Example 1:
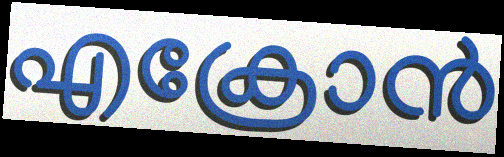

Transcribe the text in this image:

എക്രോൻ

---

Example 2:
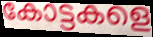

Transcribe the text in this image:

കോട്ടകളെ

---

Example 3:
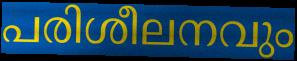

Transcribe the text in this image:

പരിശീലനവും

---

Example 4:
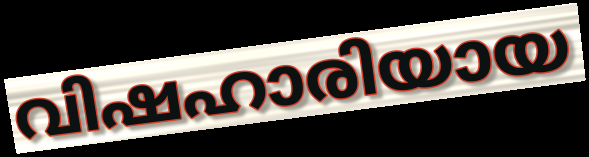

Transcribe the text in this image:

വിഷഹാരിയായ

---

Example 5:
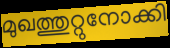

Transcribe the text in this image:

മുഖത്തുറ്റുനോക്കി